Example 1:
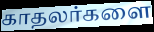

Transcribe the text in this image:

காதலர்களை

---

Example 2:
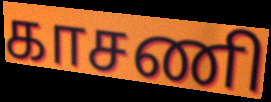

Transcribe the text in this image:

காசணி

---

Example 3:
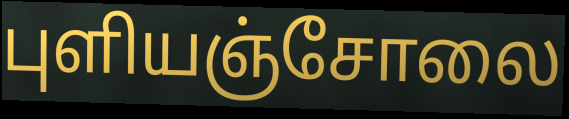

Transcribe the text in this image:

புளியஞ்சோலை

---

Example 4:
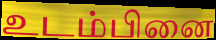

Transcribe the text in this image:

உடம்பினை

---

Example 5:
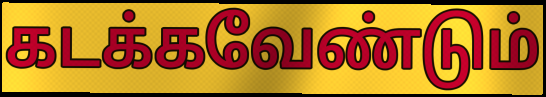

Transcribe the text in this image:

கடக்கவேண்டும்